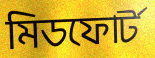
মিডফোর্ট